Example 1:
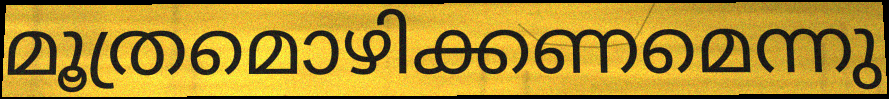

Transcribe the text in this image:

മൂത്രമൊഴിക്കണമെന്നു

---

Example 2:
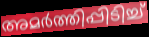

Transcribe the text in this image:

അമർത്തിപ്പിടിച്ച്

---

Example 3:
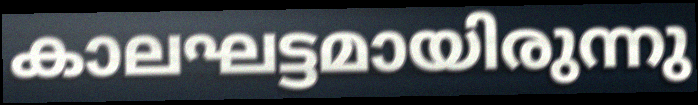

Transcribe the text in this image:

കാലഘട്ടമായിരുന്നു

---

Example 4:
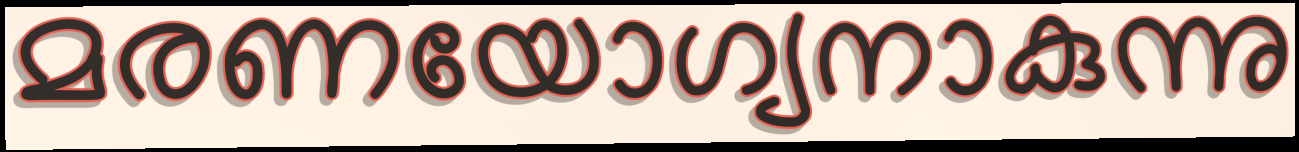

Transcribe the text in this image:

മരണയോഗ്യനാകുന്നു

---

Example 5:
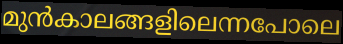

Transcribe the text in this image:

മുൻകാലങ്ങളിലെന്നപോലെ